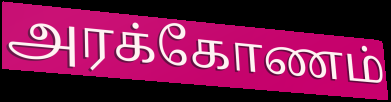
அரக்கோணம்